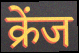
क्रेंज